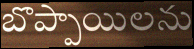
బొప్పాయిలను